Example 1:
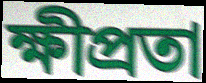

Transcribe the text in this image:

ক্ষীপ্ৰতা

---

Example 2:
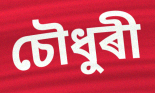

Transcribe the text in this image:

চৌধুৰী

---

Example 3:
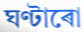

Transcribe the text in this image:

ঘণ্টাৰো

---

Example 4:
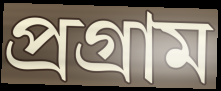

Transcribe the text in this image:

প্ৰগ্ৰাম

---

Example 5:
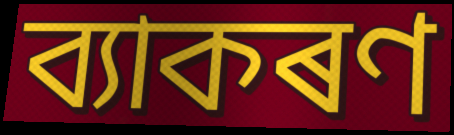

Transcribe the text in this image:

ব্যাকৰণ